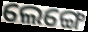
ଲେଙ୍ଗେ